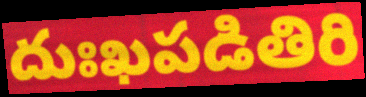
దుఃఖపడితిరి